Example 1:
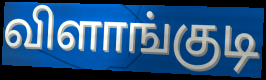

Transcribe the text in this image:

விளாங்குடி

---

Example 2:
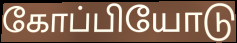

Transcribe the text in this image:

கோப்பியோடு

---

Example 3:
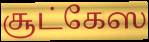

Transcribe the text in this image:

சூட்கேஸ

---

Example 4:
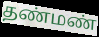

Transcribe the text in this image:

தண்மண்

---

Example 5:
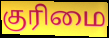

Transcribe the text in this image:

குரிமை